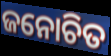
ଜନୋଚିତ